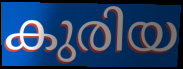
കുരിയ